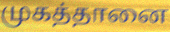
முகத்தானை